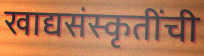
खाद्यसंस्कृतींची